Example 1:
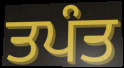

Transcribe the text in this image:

ਤਪੰਤ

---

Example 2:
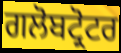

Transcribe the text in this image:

ਗਲੋਬਟ੍ਰੋਟਰ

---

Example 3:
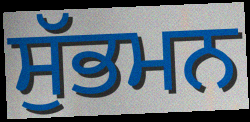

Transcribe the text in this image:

ਸੁੱਭਮਨ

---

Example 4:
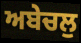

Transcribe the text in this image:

ਅਬੇਚਲੁ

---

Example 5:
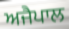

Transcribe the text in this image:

ਅਜੈਪਾਲ